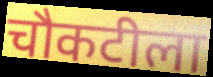
चौकटीला